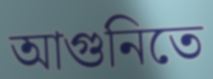
আগুনিতে